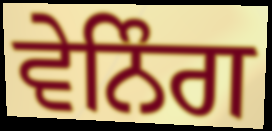
ਵੇਨਿੰਗ